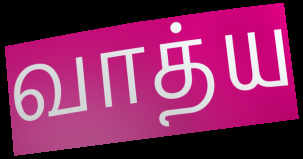
வாத்ய